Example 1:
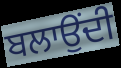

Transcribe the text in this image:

ਬਲਾਉਂਦੀ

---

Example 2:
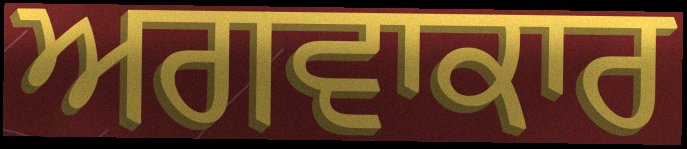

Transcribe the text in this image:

ਅਗਵਾਕਾਰ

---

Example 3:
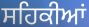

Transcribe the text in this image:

ਸਹਿਕੀਆਂ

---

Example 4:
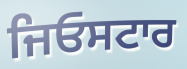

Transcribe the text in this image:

ਜਿਓਸਟਾਰ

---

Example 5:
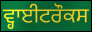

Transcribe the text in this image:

ਵ੍ਹਾਈਟਰੌਕਸ